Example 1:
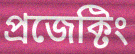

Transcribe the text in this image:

প্রজেক্টিং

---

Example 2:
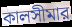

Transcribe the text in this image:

কালসীমার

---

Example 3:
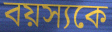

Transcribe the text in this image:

বয়স্যকে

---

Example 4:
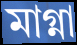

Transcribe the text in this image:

মাগ্না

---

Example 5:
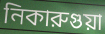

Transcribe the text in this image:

নিকারুগুয়া